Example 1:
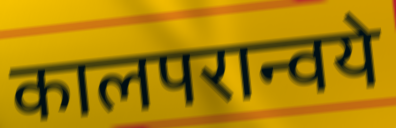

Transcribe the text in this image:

कालपरान्वये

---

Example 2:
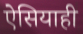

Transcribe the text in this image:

ऐसियाही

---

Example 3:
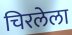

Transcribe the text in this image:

चिरलेला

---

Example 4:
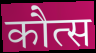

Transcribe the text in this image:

कौत्स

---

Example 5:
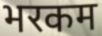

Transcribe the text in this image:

भरकम